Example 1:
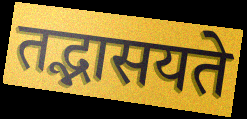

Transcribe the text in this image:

तद्भासयते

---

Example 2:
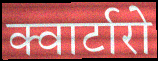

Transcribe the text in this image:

क्वार्टारो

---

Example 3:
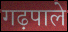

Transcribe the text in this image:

गढ़पाले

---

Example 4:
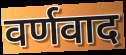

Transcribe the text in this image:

वर्णवाद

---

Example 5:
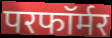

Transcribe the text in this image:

परफॉर्मर